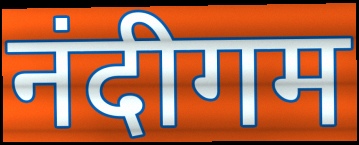
नंदीगम